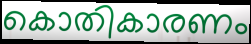
കൊതികാരണം